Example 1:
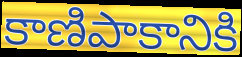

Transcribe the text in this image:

కాణిపాకానికి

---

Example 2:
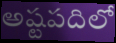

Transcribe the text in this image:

అష్టపదిలో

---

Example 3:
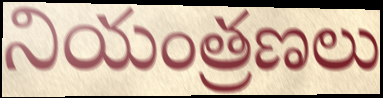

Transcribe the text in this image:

నియంత్రణలు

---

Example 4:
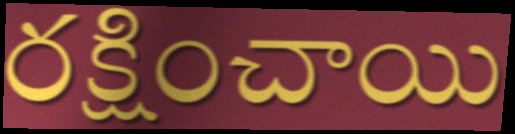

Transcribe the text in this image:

రక్షించాయి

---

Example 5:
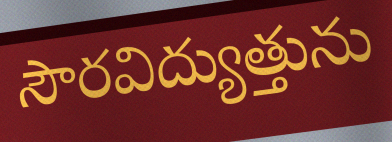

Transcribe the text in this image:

సౌరవిద్యుత్తును